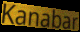
Kanabar